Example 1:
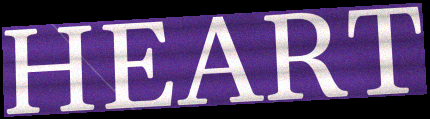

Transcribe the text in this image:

HEART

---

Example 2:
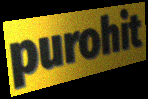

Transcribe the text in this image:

purohit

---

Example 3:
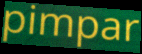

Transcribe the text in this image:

pimpar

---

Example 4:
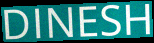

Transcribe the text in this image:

DINESH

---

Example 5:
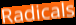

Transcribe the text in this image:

Radicals